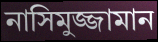
নাসিমুজ্জামান